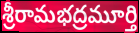
శ్రీరామభద్రమూర్తి